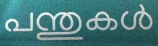
പന്തുകൾ